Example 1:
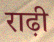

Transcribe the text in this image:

राढ़ी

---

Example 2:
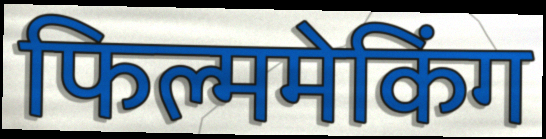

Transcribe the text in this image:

फिल्‍ममेकिंग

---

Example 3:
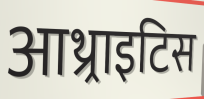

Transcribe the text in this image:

आथ्र्राइटिस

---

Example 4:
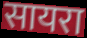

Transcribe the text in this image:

सायरा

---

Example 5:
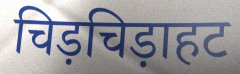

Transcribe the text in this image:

चिड़चिड़ाहट